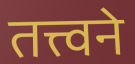
तत्त्वने